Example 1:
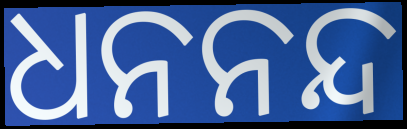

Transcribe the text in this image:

ଧନନନ୍ଦ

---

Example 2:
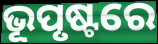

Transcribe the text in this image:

ଭୂପୃଷ୍ଟରେ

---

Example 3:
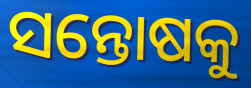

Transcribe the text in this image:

ସନ୍ତୋଷକୁ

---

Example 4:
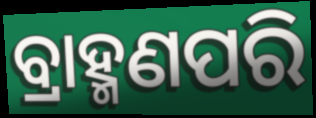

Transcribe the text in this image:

ବ୍ରାହ୍ମଣପରି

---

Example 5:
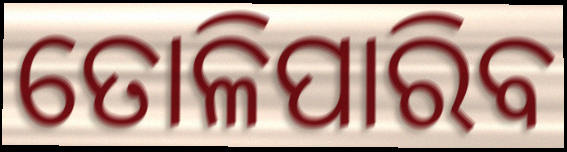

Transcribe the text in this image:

ତୋଳିପାରିବ